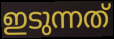
ഇടുന്നത്